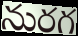
నురగ